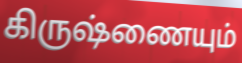
கிருஷ்ணையும்